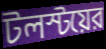
টলস্টয়ের